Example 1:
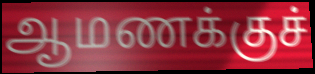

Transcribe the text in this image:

ஆமணக்குச்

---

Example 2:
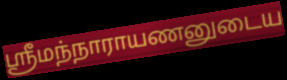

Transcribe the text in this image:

ஸ்ரீமந்நாராயணனுடைய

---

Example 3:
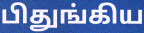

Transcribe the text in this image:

பிதுங்கிய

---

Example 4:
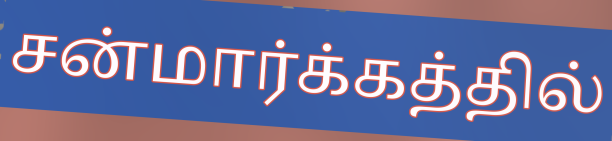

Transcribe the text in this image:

சன்மார்க்கத்தில்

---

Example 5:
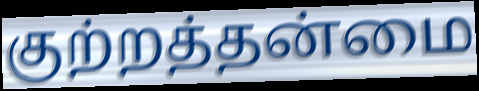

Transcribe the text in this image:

குற்றத்தன்மை